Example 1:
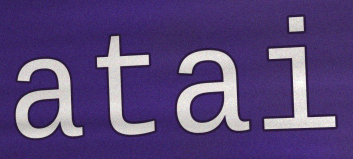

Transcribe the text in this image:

atai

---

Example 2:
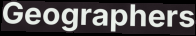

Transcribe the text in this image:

Geographers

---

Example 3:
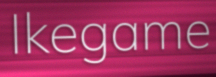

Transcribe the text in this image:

Ikegame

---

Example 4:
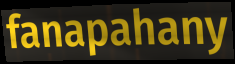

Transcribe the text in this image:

fanapahany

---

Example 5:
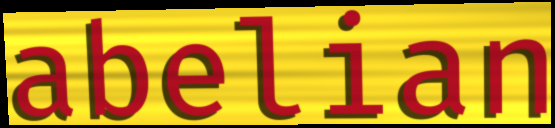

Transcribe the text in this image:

abelian